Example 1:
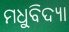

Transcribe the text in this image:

ମଧୁବିଦ୍ୟା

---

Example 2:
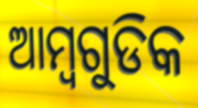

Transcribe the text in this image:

ଆମ୍ବଗୁଡିକ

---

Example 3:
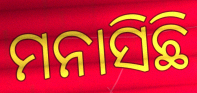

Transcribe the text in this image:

ମନାସିଛି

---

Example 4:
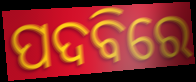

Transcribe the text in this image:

ପଦବିରେ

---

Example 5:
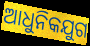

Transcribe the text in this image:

ଆଧୁନିକଯୁଗ